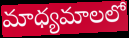
మాధ్యమాలలో